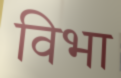
विभा